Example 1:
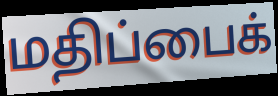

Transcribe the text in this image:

மதிப்பைக்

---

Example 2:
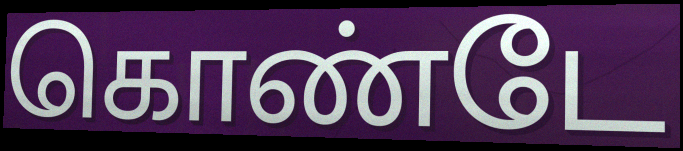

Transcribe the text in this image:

கொண்டே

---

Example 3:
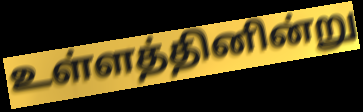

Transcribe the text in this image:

உள்ளத்தினின்று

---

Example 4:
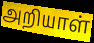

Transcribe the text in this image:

அறியாள்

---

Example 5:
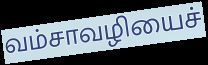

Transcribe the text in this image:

வம்சாவழியைச்